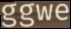
ggwe